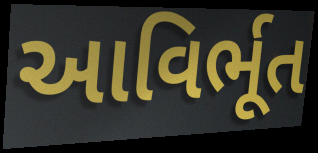
આવિર્ભૂત